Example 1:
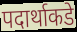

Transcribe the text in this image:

पदार्थाकडे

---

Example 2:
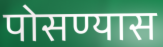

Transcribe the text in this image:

पोसण्यास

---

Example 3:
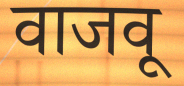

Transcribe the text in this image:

वाजवू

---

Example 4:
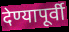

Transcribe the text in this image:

देण्यापूर्वी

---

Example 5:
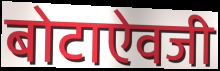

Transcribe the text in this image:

बोटाऐवजी